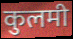
कुलमी